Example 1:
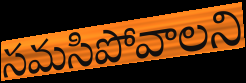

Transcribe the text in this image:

సమసిపోవాలని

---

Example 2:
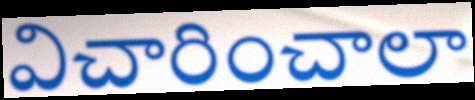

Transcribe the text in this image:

విచారించాలా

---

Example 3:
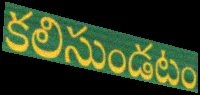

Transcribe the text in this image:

కలిసుండటం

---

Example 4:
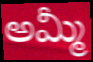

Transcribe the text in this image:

అమ్మీ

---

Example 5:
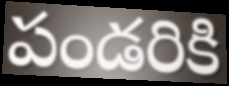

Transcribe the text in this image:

పండరికి